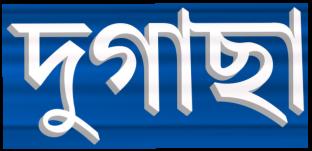
দুগাছা